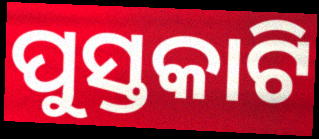
ପୁସ୍ତକାଟି